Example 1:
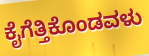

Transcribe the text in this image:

ಕೈಗೆತ್ತಿಕೊಂಡವಳು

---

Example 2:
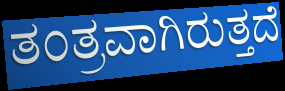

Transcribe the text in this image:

ತಂತ್ರವಾಗಿರುತ್ತದೆ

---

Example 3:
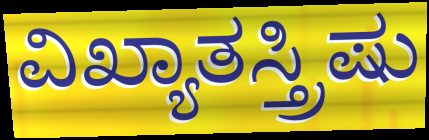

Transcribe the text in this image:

ವಿಖ್ಯಾತಸ್ತ್ರಿಷು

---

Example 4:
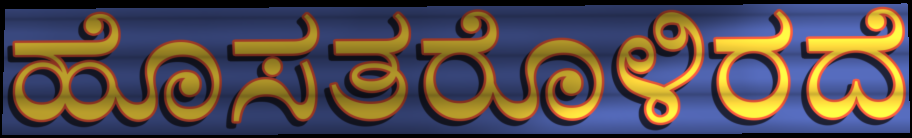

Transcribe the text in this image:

ಹೊಸತರೊಳಿರದೆ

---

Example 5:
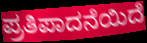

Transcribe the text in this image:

ಪ್ರತಿಪಾದನೆಯಿದೆ